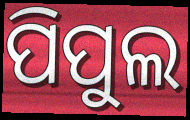
ପିପୁଲ